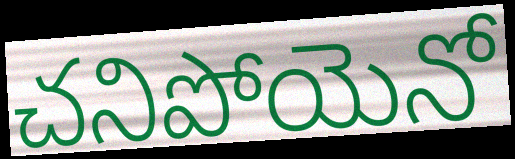
చనిపోయెనో